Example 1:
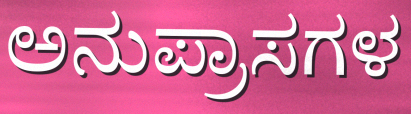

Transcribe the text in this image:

ಅನುಪ್ರಾಸಗಳ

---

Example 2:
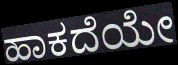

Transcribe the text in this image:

ಹಾಕದೆಯೇ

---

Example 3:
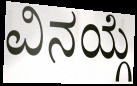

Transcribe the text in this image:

ವಿನಯ್ಗೆ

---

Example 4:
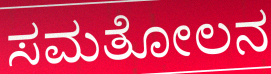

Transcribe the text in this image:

ಸಮತೋಲನ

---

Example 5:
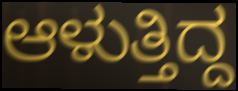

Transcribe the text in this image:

ಆಳುತ್ತಿದ್ದ